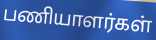
பணியாளர்கள்